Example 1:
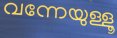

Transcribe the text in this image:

വന്നേയുള്ളൂ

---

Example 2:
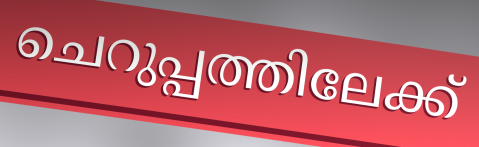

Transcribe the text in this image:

ചെറുപ്പത്തിലേക്ക്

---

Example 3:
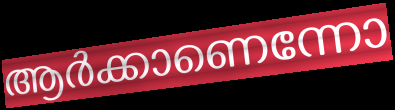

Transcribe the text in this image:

ആർക്കാണെന്നോ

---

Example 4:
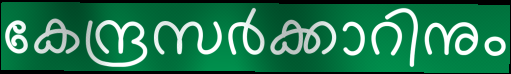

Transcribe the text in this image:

കേന്ദ്രസർക്കാറിനും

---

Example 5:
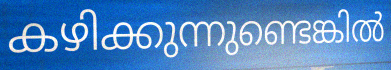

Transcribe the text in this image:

കഴിക്കുന്നുണ്ടെങ്കിൽ